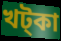
খট্কা